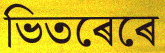
ভিতৰেৰে